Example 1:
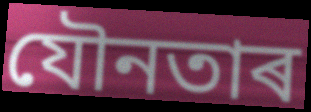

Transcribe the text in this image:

যৌনতাৰ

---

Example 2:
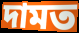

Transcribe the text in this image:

দামত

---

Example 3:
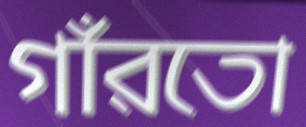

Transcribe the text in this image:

গাঁৱতো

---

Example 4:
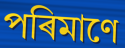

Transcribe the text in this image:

পৰিমাণে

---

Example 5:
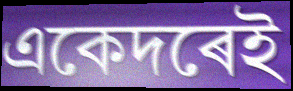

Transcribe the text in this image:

একেদৰেই